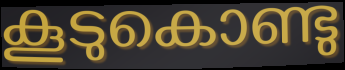
കൂടുകൊണ്ടു